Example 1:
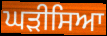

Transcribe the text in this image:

ਘੜੀਸਿਆ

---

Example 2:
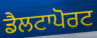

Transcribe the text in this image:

ਡੈਲਟਾਪੋਰਟ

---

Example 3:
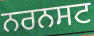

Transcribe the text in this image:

ਨਰਨਸਟ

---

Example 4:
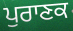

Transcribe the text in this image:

ਪੁਰਾਣਕ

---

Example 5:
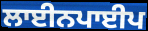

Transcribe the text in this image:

ਲਾਈਨਪਾਈਪ